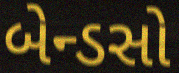
બેન્ડસો